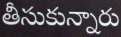
తీసుకున్నారు